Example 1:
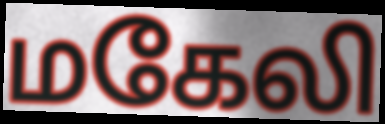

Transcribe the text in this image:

மகேலி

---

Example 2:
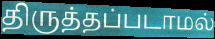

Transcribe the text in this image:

திருத்தப்படாமல்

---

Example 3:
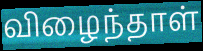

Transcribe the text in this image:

விழைந்தாள்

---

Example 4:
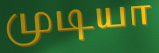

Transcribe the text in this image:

முடியா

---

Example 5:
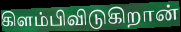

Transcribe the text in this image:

கிளம்பிவிடுகிறான்